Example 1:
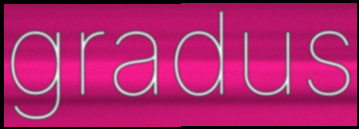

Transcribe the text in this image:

gradus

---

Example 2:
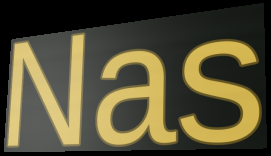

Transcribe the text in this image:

Nas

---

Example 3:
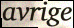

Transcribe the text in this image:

avrige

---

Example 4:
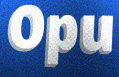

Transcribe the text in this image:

Opu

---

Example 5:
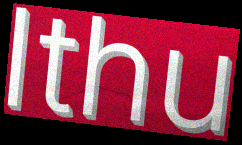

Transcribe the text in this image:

Ithu